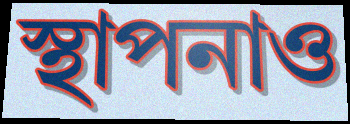
স্থাপনাও